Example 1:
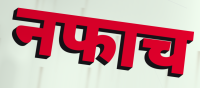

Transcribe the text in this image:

नफाच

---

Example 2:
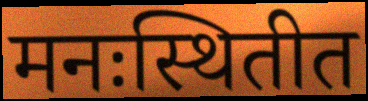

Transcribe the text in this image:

मनःस्थितीत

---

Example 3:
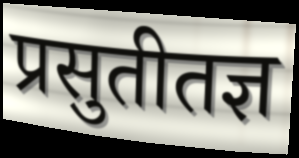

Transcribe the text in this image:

प्रसुतीतज्ञ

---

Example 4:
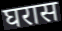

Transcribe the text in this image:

घरास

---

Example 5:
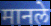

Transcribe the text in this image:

मानले